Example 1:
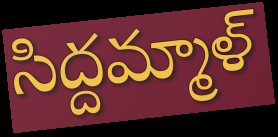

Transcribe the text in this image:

సిద్దమ్మాళ్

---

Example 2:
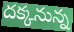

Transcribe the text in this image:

దక్కనున్న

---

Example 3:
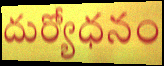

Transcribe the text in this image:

దుర్యోధనం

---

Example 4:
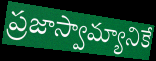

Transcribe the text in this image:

ప్రజాస్వామ్యానికే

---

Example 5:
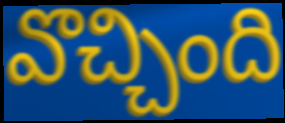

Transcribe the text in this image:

వొచ్చింది